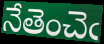
నేతెంచెఁ